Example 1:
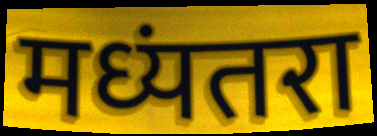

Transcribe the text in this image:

मध्यंतरा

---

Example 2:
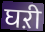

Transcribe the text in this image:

घऱी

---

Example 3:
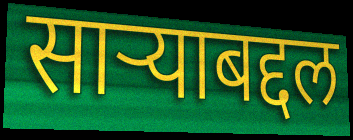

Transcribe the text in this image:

साऱ्याबद्दल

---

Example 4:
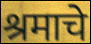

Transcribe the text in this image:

श्रमाचे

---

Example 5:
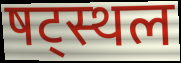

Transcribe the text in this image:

षट्स्थल